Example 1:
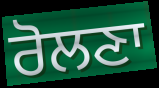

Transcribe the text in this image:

ਰੋਲਣਾ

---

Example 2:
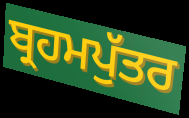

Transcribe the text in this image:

ਬ੍ਰਹਮਪੁੱਤਰ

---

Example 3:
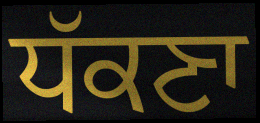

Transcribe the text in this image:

ਧੱਕਣਾ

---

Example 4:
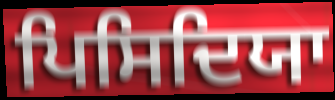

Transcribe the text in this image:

ਪਿਸਿਦਿਯਾ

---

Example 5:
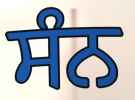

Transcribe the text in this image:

ਸੰਨ